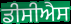
ਡੀਸੀਐਸ